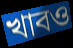
খাবও